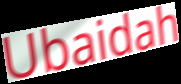
Ubaidah